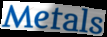
Metals